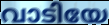
വാടിയേ